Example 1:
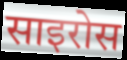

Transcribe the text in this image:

साइरोस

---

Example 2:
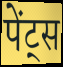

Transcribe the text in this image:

पेंट्स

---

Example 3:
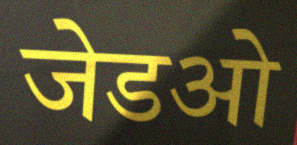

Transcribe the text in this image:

जेडओ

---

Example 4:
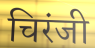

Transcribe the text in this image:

चिरंजी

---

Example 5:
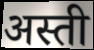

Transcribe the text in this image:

अस्ती